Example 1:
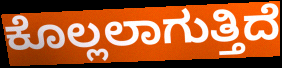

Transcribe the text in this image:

ಕೊಲ್ಲಲಾಗುತ್ತಿದೆ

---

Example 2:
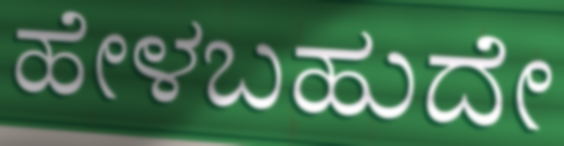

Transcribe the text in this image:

ಹೇಳಬಹುದೇ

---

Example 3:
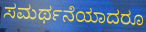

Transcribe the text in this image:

ಸಮರ್ಥನೆಯಾದರೂ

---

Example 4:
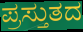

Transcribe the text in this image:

ಪ್ರಸ್ತುತದ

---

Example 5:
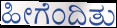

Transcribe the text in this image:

ಹೀಗೆಂದಿತು